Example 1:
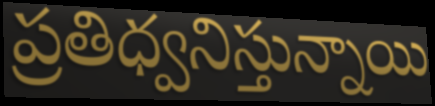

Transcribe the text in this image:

ప్రతిధ్వనిస్తున్నాయి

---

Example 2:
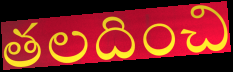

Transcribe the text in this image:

తలదించి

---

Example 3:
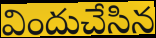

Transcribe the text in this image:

విందుచేసిన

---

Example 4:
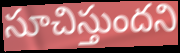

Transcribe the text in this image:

సూచిస్తుందని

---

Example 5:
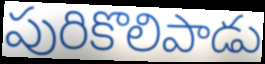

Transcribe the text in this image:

పురికొలిపాడు